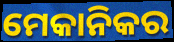
ମେକାନିକର